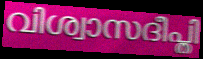
വിശ്വാസദീപ്തി